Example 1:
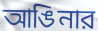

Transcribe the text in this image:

আঙিনার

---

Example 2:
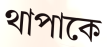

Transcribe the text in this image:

থাপাকে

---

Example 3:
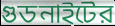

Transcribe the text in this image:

গুডনাইটের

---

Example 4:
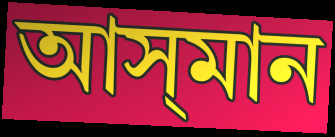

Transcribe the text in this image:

আস্‌মান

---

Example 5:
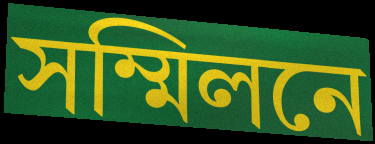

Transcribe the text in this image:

সম্মিলনে